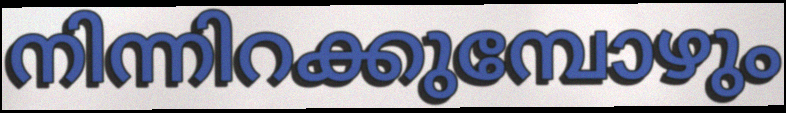
നിന്നിറക്കുമ്പോഴും